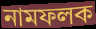
নামফলক